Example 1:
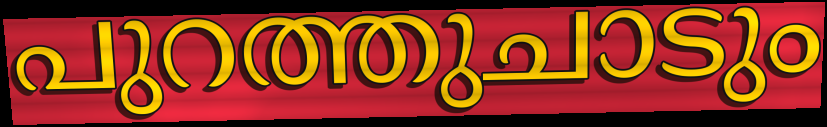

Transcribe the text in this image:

പുറത്തുചാടും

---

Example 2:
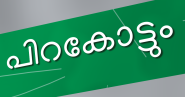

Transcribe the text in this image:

പിറകോട്ടും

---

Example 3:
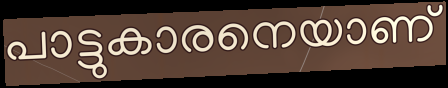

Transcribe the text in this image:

പാട്ടുകാരനെയാണ്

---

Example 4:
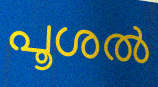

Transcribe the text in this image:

പൂശൽ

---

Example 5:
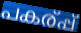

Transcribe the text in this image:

പകര്പ്പ്